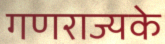
गणराज्यके